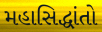
મહાસિદ્ધાંતો